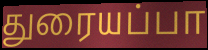
துரையப்பா